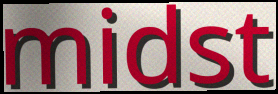
midst